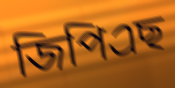
জিপিএছ